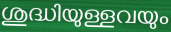
ശുദ്ധിയുള്ളവയും